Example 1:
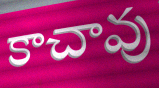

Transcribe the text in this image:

కాచావు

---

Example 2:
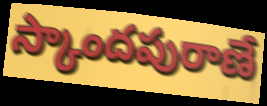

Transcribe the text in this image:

స్కాందపురాణే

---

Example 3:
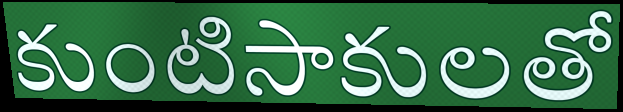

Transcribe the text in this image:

కుంటిసాకులతో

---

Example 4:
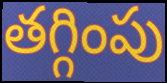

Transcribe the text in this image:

తగ్గింపు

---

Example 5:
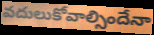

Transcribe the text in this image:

వదులుకోవాల్సిందేనా